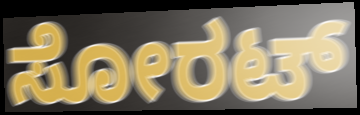
ಸೋರಟ್